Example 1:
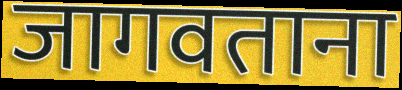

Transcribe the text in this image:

जागवताना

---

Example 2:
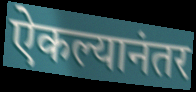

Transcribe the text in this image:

ऐकल्यानंतर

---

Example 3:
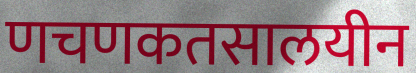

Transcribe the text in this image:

णचणकतसालयीन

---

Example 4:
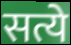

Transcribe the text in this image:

सत्ये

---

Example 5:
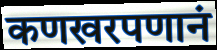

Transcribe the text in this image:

कणखरपणानं